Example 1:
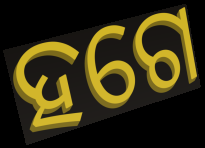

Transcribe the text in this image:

ହଗେ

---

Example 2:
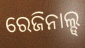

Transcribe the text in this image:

ରେଜିନାଲ୍ଡ୍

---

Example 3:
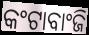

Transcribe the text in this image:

କଂଟାବାଂଜି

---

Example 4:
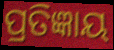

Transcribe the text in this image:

ପ୍ରତିଜ୍ଞାୟ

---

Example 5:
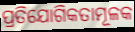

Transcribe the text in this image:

ପ୍ରତିଯୋଗିକତାମୂଳକ